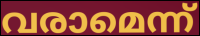
വരാമെന്ന്